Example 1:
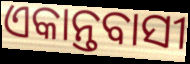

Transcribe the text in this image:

ଏକାନ୍ତବାସୀ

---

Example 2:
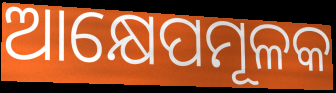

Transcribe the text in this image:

ଆକ୍ଷେପମୂଳକ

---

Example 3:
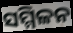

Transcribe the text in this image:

ସମ୍ମିଳନ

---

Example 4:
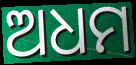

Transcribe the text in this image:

ଅଧମ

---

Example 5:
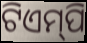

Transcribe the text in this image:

ଟିଏମ୍‌ପି